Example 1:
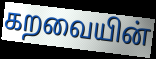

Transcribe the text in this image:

கறவையின்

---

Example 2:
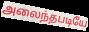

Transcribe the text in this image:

அலைந்தபடியே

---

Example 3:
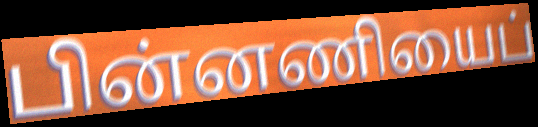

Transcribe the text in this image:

பின்னணியைப்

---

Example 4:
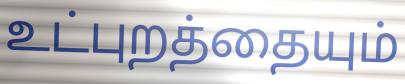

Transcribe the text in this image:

உட்புறத்தையும்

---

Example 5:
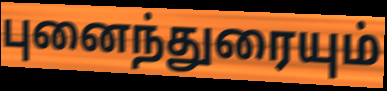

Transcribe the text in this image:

புனைந்துரையும்